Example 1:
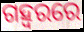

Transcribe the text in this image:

ଗହ୍ୱରରେ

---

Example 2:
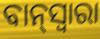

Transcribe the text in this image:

ବାନ୍‌ସ୍ୱାରା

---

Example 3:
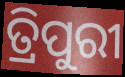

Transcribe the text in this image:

ତ୍ରିପୁରୀ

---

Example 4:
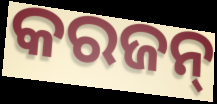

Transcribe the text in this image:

କରଜନ୍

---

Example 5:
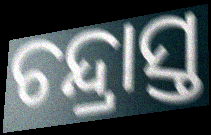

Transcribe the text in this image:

ଚନ୍ଦ୍ରାସ୍ତ